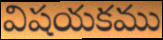
విషయకము